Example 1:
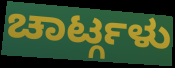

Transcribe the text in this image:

ಚಾರ್ಟ್ಗಳು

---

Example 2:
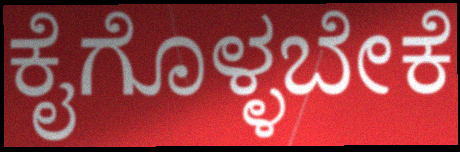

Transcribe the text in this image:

ಕೈಗೊಳ್ಳಬೇಕೆ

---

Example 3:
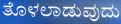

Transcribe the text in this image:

ತೊಳಲಾಡುವುದು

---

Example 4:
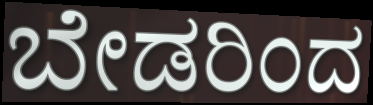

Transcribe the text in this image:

ಬೇಡರಿಂದ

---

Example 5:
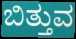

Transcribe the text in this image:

ಬಿತ್ತುವ